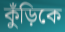
কুঁড়িকে